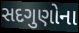
સદગુણોના